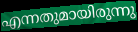
എന്നതുമായിരുന്നു